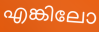
എങ്കിലോ